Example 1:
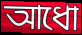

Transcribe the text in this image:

আধো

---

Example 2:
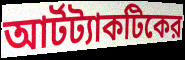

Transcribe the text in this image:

আর্টট্যাকটিকের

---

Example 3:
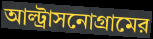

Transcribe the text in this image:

আল্ট্রাসনোগ্রামের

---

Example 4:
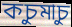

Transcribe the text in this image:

কচুমাচু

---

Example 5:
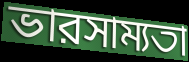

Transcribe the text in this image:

ভারসাম্যতা